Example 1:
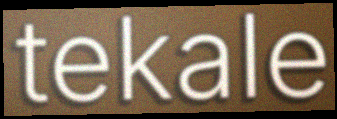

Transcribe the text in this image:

tekale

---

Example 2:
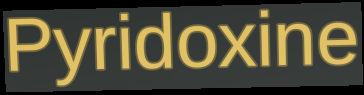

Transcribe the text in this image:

Pyridoxine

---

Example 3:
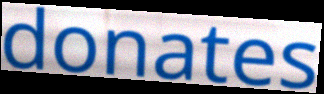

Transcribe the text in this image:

donates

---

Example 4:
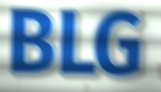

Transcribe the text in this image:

BLG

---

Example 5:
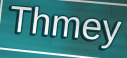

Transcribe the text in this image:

Thmey